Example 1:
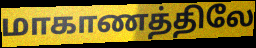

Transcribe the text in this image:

மாகாணத்திலே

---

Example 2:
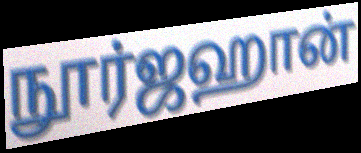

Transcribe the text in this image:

நூர்ஜஹான்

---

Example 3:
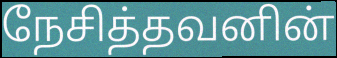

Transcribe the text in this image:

நேசித்தவனின்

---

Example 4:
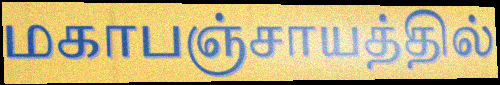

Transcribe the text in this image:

மகாபஞ்சாயத்தில்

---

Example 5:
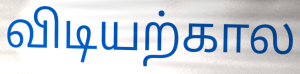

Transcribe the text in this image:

விடியற்கால